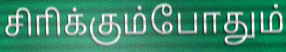
சிரிக்கும்போதும்